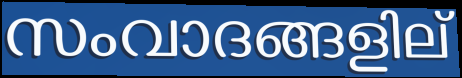
സംവാദങ്ങളില്